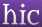
hic